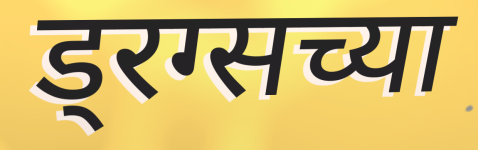
ड्रग्सच्या